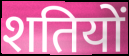
शतियों